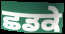
ਛਡਕੇ